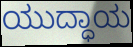
ಯುದ್ಧಾಯ